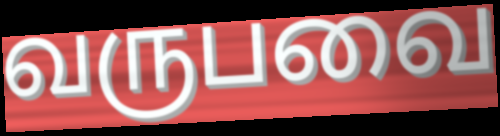
வருபவை